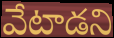
వేటాడని